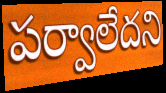
పర్వాలేదని